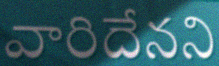
వారిదేనని